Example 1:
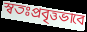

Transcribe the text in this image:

স্বতঃপ্রবৃত্তভাবে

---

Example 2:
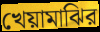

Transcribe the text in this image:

খেয়ামাঝির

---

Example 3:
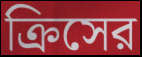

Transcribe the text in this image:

ক্রিসের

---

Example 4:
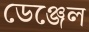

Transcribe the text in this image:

ডেঞ্জেল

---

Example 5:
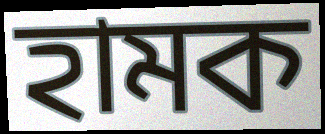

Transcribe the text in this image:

হামক